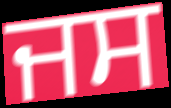
ਜਸ